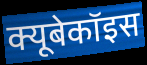
क्यूबेकॉइस